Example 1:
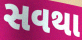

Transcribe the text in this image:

સવથા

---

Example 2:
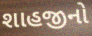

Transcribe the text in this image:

શાહજીનો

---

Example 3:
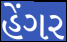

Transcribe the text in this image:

હેંગર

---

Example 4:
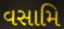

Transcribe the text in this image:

વસામિ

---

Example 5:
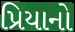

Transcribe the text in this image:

પ્રિયાનો